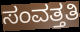
ಸಂವತ್ತತಿ